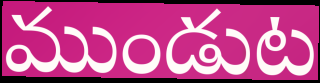
ముండుట